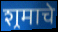
श्रमाचे